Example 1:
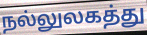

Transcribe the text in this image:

நல்லுலகத்து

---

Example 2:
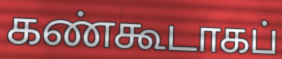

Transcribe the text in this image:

கண்கூடாகப்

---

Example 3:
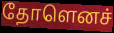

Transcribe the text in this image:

தோளெனச்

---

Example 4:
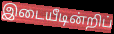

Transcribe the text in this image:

இடையீடின்றிப்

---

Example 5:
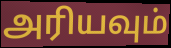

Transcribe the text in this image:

அரியவும்